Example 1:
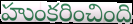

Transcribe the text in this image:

హుంకరించింది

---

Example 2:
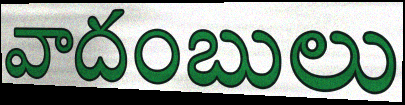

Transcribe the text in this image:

వాదంబులు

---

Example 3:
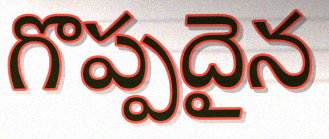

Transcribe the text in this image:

గొప్పదైన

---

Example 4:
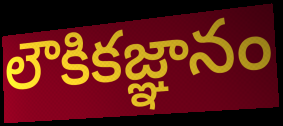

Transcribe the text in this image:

లౌకికజ్ఞానం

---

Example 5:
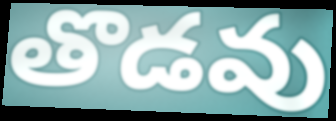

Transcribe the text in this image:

తొడవు